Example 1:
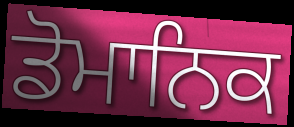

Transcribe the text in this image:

ਡੋਮਾਨਿਕ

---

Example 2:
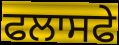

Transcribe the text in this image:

ਫਲਾਸਫੇ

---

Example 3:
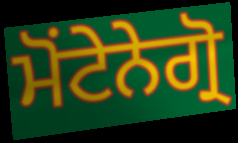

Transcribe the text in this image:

ਮੋਂਟੇਨੇਗ੍ਰੋ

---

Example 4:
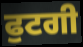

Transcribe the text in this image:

ਫੁਟਗੀ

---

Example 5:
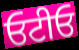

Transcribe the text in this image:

ਓਟੀਓ